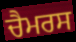
ਚੈਮਰਸ